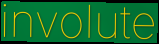
involute